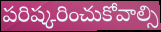
పరిష్కరించుకోవాల్సి